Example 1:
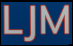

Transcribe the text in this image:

LJM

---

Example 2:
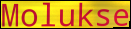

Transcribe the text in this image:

Molukse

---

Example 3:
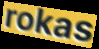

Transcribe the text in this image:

rokas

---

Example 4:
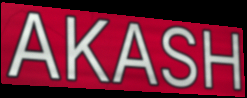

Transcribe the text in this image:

AKASH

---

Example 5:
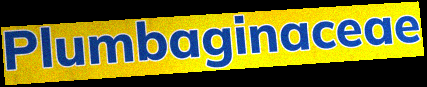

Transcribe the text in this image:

Plumbaginaceae